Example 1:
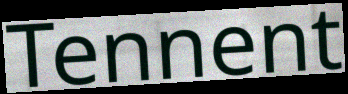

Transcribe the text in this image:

Tennent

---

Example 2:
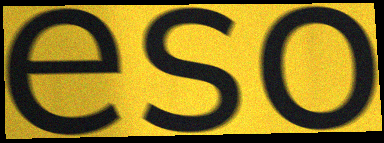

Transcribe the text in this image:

eso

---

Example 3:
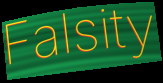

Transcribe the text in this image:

Falsity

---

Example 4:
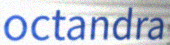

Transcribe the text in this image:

octandra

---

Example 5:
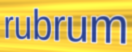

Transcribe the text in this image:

rubrum